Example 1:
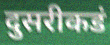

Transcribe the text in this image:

दुसरीकडं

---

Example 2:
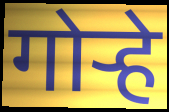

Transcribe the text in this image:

गोऱ्हे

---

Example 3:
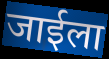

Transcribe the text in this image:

जाईला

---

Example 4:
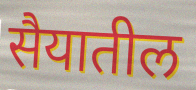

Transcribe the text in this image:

सैयातील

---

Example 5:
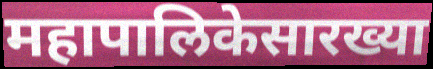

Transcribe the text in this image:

महापालिकेसारख्या